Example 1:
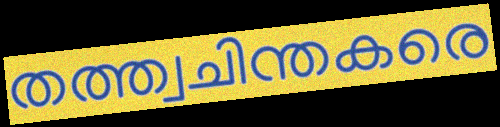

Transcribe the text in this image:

തത്ത്വചിന്തകരെ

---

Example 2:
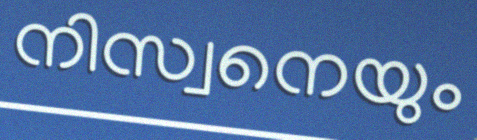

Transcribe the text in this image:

നിസ്വനെയും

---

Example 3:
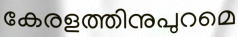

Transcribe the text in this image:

കേരളത്തിനുപുറമെ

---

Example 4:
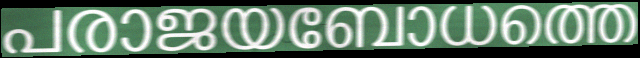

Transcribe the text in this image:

പരാജയബോധത്തെ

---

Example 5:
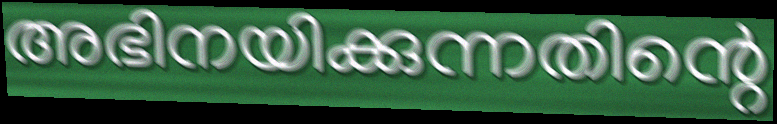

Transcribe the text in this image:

അഭിനയിക്കുന്നതിന്റെ